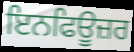
ਇਨਫਿਊਜ਼ਰ